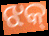
ଝକ୍